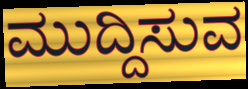
ಮುದ್ದಿಸುವ